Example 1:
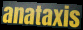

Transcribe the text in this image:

anataxis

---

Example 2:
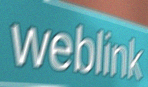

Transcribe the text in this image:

weblink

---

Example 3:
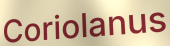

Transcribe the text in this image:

Coriolanus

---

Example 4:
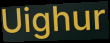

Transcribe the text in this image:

Uighur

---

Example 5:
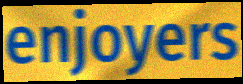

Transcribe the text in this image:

enjoyers